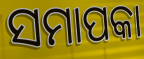
ସମାପକା